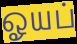
ஓயப்